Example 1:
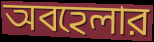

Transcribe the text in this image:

অবহেলার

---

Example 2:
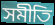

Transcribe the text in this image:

সমীতি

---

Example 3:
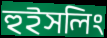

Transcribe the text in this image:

হুইসলিং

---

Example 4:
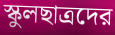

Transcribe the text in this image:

স্কুলছাত্রদের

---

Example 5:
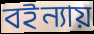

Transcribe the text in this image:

বইন্যায়